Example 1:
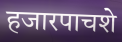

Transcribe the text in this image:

हजारपाचशे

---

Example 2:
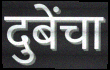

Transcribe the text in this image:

दुबेंचा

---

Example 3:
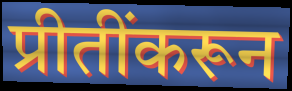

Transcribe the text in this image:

प्रीतींकरून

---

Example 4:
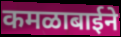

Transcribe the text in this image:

कमळाबाईने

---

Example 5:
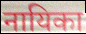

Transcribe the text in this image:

नायिका